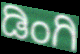
ಡಿಂಗಿ